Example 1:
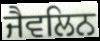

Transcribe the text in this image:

ਜੈਵਲਿਨ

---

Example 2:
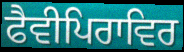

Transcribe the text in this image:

ਫੈਵੀਪਿਰਾਵਿਰ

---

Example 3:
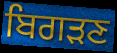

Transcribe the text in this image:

ਬਿਗੜਣ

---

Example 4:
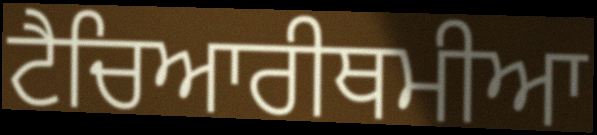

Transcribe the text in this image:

ਟੈਚਿਆਰੀਥਮੀਆ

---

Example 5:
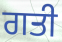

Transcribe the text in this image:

ਗਤੀ